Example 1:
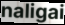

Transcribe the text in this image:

naligai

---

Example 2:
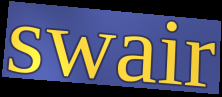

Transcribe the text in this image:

swair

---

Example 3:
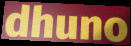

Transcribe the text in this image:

dhuno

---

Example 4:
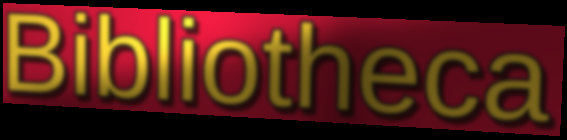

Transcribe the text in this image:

Bibliotheca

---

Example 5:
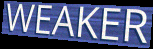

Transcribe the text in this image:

WEAKER